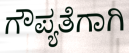
ಗೌಪ್ಯತೆಗಾಗಿ